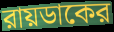
রায়ডাকের